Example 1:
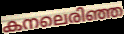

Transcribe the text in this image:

കനലെരിഞ്ഞ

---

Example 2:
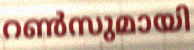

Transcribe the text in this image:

റൺസുമായി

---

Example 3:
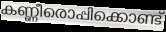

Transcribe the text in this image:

കണ്ണീരൊപ്പിക്കൊണ്ട്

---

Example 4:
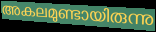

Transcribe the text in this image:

അകലമുണ്ടായിരുന്നു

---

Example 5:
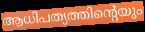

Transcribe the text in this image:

ആധിപത്യത്തിന്റെയും